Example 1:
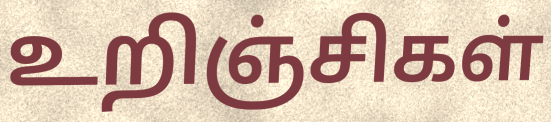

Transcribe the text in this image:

உறிஞ்சிகள்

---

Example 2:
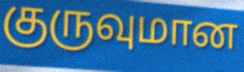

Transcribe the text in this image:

குருவுமான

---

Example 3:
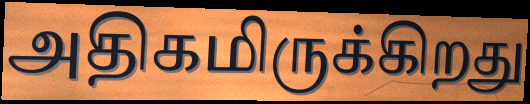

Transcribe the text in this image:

அதிகமிருக்கிறது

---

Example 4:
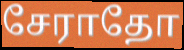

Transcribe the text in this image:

சேராதோ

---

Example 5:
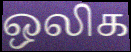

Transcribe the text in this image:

ஒலிக